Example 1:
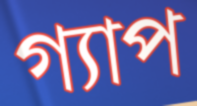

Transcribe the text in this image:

গ্যাপ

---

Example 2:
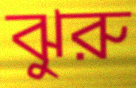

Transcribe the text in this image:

ঝুরু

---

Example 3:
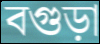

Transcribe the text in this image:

বগুড়া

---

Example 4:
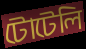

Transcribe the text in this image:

টোটেলি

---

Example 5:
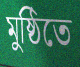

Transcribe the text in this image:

মুষ্ঠিতে